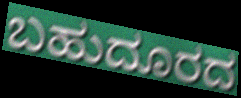
ಬಹುದೂರದ